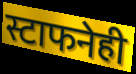
स्टाफनेही